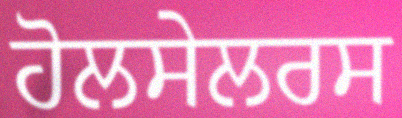
ਹੋਲਸੇਲਰਸ